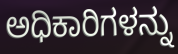
ಅಧಿಕಾರಿಗಳನ್ನು